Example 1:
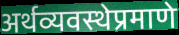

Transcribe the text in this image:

अर्थव्यवस्थेप्रमाणे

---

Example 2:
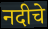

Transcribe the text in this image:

नदीचे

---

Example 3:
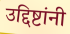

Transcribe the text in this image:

उद्दिष्टांनी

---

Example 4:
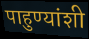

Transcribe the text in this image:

पाहुण्यांशी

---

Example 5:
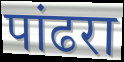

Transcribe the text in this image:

पांढरा